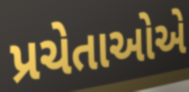
પ્રચેતાઓએ